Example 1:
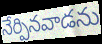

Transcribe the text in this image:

నేర్పినవాడను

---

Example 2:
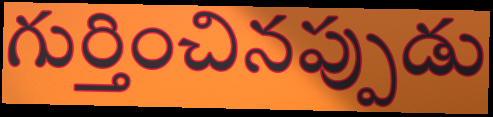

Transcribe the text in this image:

గుర్తించినప్పుడు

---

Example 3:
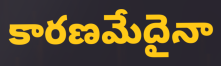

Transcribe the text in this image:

కారణమేదైనా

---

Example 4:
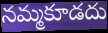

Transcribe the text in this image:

నమ్మకూడదు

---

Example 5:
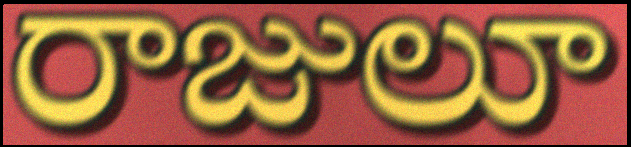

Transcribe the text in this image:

రాజులూ